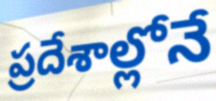
ప్రదేశాల్లోనే